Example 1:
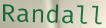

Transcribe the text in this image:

Randall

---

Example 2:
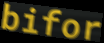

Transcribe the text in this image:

bifor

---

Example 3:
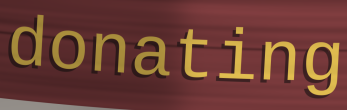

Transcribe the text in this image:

donating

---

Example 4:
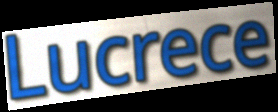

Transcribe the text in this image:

Lucrece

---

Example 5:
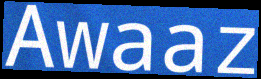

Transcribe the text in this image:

Awaaz